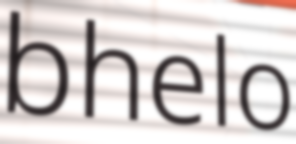
bhelo